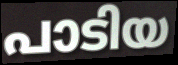
പാടിയ